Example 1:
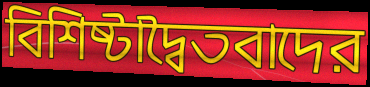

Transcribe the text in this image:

বিশিষ্টাদ্বৈতবাদের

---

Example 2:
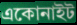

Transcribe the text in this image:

একোনাইট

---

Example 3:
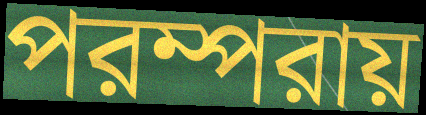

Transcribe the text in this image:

পরম্পরায়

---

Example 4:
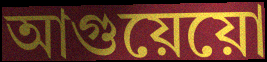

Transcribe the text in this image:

আগুয়েয়ো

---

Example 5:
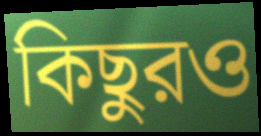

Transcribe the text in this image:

কিছুরও